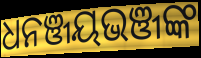
ଧନଞ୍ଜୟଭଞ୍ଜଙ୍କ